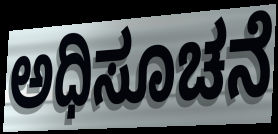
ಅಧಿಸೂಚನೆ